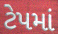
ટેપમાં